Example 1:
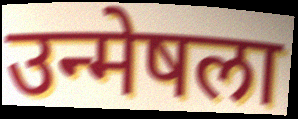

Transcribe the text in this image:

उन्मेषला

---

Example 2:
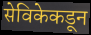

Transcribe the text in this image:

सेविकेकडून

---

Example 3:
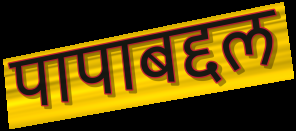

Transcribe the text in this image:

पापाबद्दल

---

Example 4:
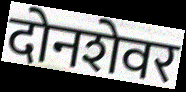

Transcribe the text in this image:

दोनशेवर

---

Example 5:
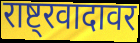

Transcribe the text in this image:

राष्ट्रवादावर